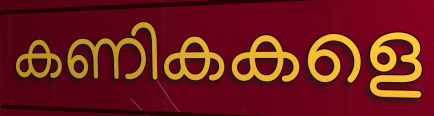
കണികകളെ